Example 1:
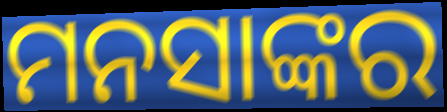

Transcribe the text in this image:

ମନସାଙ୍କର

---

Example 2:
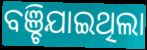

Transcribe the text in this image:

ବଞ୍ଚିଯାଇଥିଲା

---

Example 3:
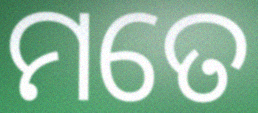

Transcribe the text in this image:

ମତେ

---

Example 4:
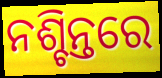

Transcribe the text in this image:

ନଶ୍ଚିନ୍ତରେ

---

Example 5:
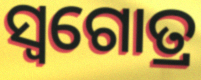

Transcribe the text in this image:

ସ୍ୱଗୋତ୍ର